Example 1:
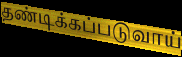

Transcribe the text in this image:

தண்டிக்கப்படுவாய்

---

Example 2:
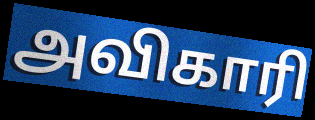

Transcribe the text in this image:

அவிகாரி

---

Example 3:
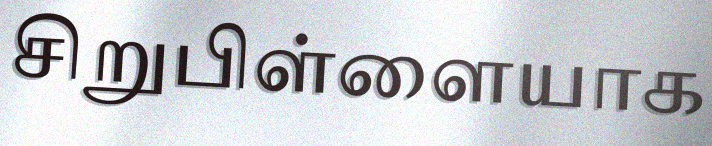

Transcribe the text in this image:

சிறுபிள்ளையாக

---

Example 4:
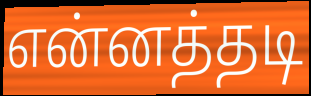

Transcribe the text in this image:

என்னத்தடி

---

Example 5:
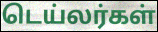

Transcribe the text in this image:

டெய்லர்கள்